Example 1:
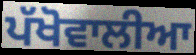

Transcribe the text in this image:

ਪੱਖੋਵਾਲੀਆ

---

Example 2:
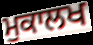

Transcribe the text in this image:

ਮੁਕਾਲਖ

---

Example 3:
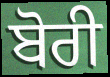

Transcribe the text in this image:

ਬੋਰੀ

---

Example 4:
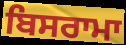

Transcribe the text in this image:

ਬਿਸਰਾਮਾ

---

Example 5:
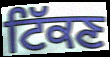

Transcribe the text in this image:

ਟਿੱਕਣ